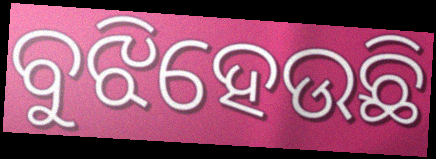
ବୁଝିହେଉଛି